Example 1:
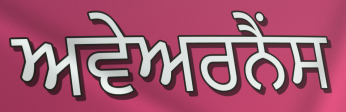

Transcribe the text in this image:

ਅਵੇਅਰਨੈਂਸ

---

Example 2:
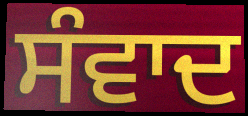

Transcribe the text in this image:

ਸੰਵਾਦ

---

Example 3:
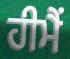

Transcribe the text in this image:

ਹੀਮੈਂ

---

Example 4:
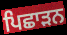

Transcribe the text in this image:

ਪਿਛਾੜਨ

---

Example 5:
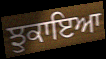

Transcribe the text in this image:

ਝੁਕਾਇਆ